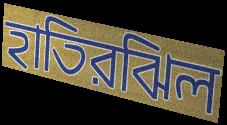
হাতিরঝিল